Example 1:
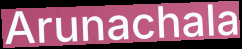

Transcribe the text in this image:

Arunachala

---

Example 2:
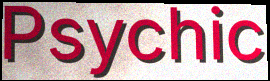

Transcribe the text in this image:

Psychic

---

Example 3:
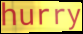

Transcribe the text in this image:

hurry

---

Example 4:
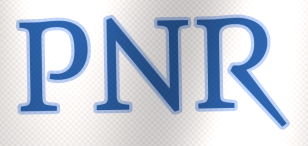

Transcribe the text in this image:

PNR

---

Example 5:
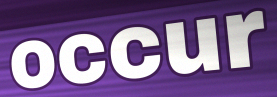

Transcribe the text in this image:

occur